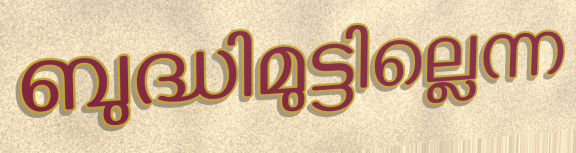
ബുദ്ധിമുട്ടില്ലെന്ന